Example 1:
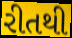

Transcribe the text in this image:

રીતથી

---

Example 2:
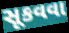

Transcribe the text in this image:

સૂકવવા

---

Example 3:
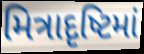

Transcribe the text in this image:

મિત્રાદૃષ્ટિમાં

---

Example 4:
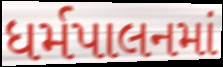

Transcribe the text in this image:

ધર્મપાલનમાં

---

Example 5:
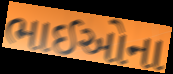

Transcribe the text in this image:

ભાઈઓના